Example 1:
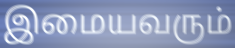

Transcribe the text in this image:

இமையவரும்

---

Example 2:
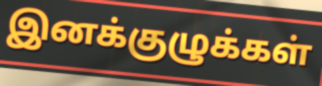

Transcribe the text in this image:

இனக்குழுக்கள்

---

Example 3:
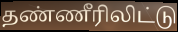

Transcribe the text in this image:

தண்ணீரிலிட்டு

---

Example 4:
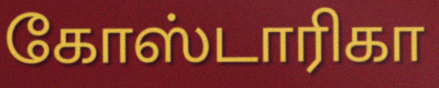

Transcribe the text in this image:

கோஸ்டாரிகா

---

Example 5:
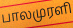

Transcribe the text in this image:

பாலமுரளி